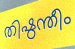
തിഷ്ഠന്തീം